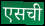
एसची